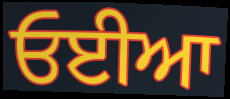
ਓਈਆ